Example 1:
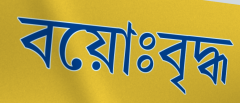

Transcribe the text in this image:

বয়োঃবৃদ্ধ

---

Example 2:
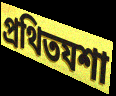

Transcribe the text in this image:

প্রথিতযশা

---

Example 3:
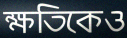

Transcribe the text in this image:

ক্ষতিকেও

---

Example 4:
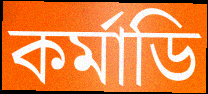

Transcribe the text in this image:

কর্মাডি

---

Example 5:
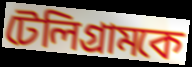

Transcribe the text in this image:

টেলিগ্রামকে